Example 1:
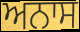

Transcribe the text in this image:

ਅਨਾਸ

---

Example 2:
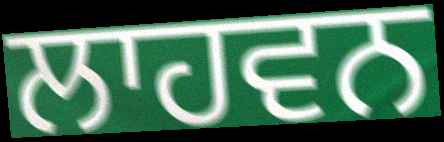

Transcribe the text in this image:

ਲਾਹਵਨ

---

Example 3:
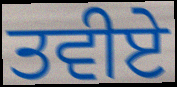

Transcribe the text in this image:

ਤਵੀਏ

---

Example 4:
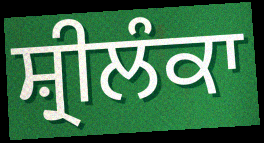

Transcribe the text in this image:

ਸ਼੍ਰ੍ਰੀਲੰਕਾ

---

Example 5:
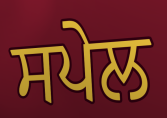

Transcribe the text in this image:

ਸਪੇਲ